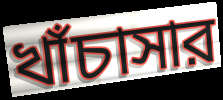
খাঁচাসার